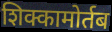
शिक्कामोर्तब